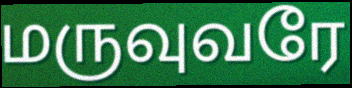
மருவுவரே